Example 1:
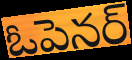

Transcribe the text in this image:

ఓపెనర్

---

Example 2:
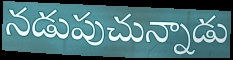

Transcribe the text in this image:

నడుపుచున్నాడు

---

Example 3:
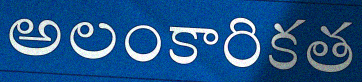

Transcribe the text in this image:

అలంకారికత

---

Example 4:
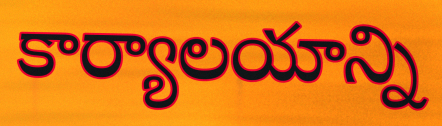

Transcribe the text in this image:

కార్యాలయాన్ని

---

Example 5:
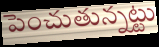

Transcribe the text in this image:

పెంచుతున్నట్టు